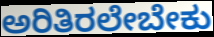
ಅರಿತಿರಲೇಬೇಕು